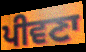
ਪੀਵਣਾ